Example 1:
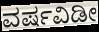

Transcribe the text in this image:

ವರ್ಷವಿಡೀ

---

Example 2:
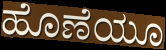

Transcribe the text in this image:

ಹೊಣೆಯೂ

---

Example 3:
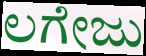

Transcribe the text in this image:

ಲಗೇಜು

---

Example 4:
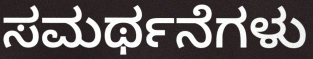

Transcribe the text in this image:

ಸಮರ್ಥನೆಗಳು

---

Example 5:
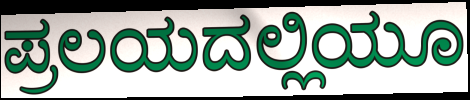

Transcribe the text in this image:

ಪ್ರಲಯದಲ್ಲಿಯೂ